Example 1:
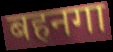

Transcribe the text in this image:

बहनगा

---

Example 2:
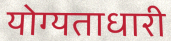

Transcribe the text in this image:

योग्यताधारी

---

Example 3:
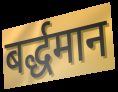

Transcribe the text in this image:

बर्द्धमान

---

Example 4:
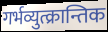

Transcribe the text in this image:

गर्भव्युत्क्रान्तिक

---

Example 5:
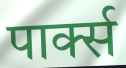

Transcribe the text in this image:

पार्क्‍स